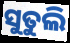
ସୁତୁଲି